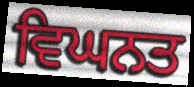
ਵਿਘਨਤ